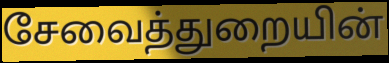
சேவைத்துறையின்